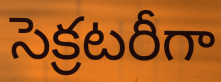
సెక్రటరీగా